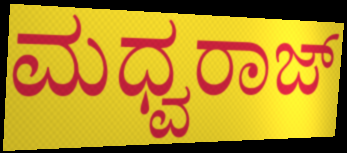
ಮಧ್ವರಾಜ್